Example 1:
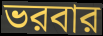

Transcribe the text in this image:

ভরবার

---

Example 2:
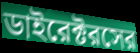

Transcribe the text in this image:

ডাইরেক্টরসের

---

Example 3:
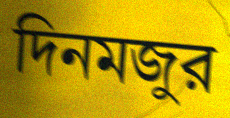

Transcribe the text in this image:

দিনমজুর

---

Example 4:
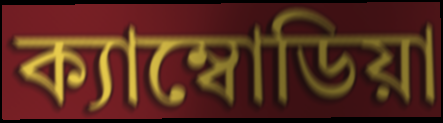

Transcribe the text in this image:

ক্যাম্বোডিয়া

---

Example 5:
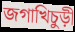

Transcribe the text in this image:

জগাখিচুড়ী